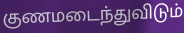
குணமடைந்துவிடும்